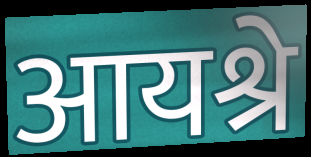
आयश्रे